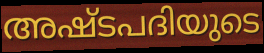
അഷ്ടപദിയുടെ